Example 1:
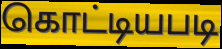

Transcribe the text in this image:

கொட்டியபடி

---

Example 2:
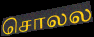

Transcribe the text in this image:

சொலல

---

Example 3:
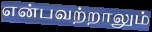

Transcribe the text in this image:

என்பவற்றாலும்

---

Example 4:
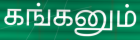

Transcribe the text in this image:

கங்கனும்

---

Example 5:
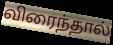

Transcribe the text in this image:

விரைந்தால்